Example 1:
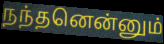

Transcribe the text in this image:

நந்தனென்னும்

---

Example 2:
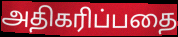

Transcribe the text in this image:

அதிகரிப்பதை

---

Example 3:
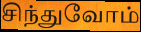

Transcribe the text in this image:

சிந்துவோம்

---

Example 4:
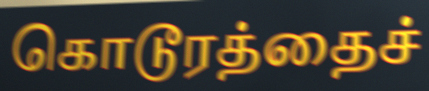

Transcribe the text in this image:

கொடூரத்தைச்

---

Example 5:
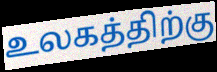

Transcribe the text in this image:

உலகத்திற்கு